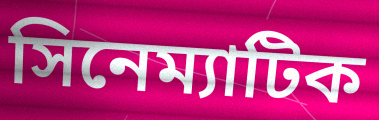
সিনেম্যাটিক